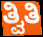
ತ್ವಿತಿ